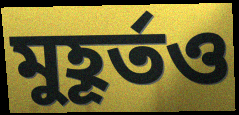
মুহূর্তও